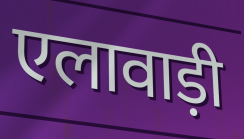
एलावाड़ी